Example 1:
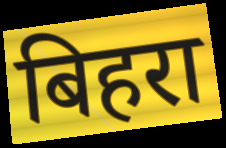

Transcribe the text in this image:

बिहरा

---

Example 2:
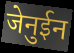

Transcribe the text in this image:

जेनुईन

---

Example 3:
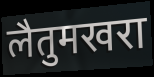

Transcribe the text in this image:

लैतुमखरा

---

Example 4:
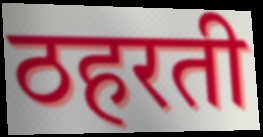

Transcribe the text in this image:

ठहरती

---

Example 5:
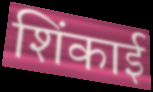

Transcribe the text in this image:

शिंकाई